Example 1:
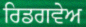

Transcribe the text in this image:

ਰਿਡਗਵੇਅ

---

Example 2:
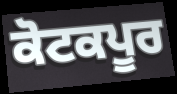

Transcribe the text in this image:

ਕੋਟਕਪੂਰ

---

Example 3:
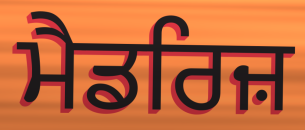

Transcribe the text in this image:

ਮੈਡਰਿਜ਼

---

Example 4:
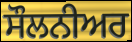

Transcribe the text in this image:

ਸੌਲਨੀਅਰ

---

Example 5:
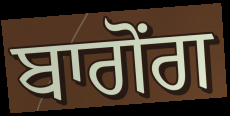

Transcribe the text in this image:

ਬਾਗੋਂਗ